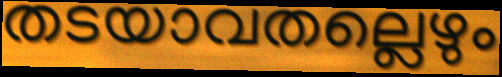
തടയാവതല്ലെഴും